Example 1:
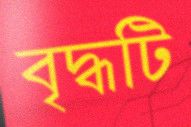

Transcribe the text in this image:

বৃদ্ধটি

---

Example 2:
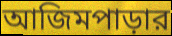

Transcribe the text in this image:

আজিমপাড়ার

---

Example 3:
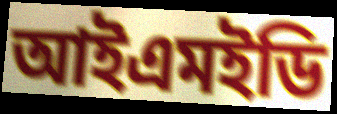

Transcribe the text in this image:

আইএমইডি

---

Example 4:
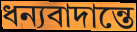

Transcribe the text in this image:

ধন্যবাদান্তে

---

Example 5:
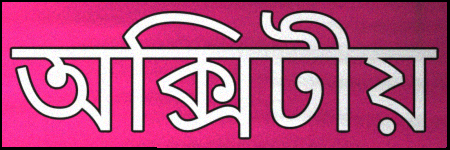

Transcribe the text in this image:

অক্সিটীয়